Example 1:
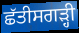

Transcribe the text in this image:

ਛੱਤੀਸਗੜ੍ਹੀ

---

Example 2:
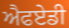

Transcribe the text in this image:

ਐਫਏਡੀ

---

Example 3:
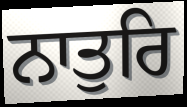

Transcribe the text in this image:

ਨਾਤੁਰਿ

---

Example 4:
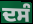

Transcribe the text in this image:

ਦਸੰ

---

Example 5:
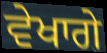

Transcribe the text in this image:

ਵੇਖਾਗੇ